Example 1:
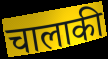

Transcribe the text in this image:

चालाकी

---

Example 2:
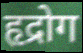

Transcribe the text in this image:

हृद्रोग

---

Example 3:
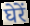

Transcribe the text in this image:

घेरें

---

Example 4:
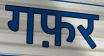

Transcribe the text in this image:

गफ़र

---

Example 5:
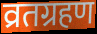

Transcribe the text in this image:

व्रतग्रहण